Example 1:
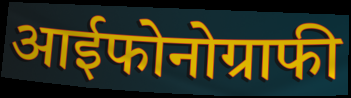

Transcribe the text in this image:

आईफोनोग्राफी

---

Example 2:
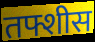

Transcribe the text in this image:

तफ्शीस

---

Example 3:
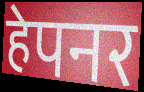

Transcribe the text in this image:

हेपनर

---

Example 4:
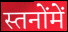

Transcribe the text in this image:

स्तनोंमें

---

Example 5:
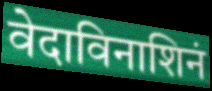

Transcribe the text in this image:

वेदाविनाशिनं